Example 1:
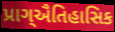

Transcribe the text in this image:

પ્રાગ્ઐતિહાસિક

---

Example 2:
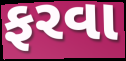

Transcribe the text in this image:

ફરવા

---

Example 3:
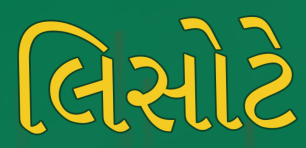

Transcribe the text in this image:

લિસોટે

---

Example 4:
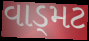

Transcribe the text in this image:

વાડ્મટ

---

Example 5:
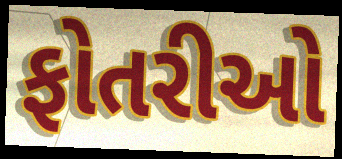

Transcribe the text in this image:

ફોતરીઓ